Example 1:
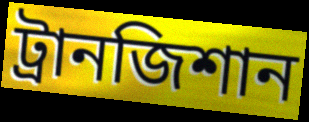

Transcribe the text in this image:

ট্রানজিশান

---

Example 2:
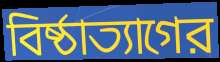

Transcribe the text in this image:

বিষ্ঠাত্যাগের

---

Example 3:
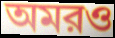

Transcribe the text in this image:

অমরও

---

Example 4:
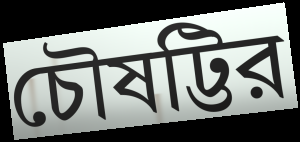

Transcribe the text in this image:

চৌষট্টির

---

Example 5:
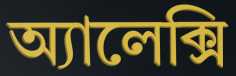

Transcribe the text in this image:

অ্যালেক্সি